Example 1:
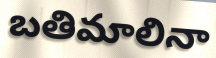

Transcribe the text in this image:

బతిమాలినా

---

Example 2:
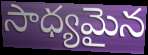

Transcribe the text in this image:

సాధ్యమైన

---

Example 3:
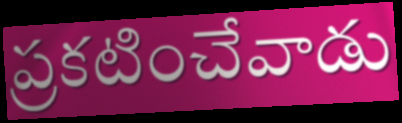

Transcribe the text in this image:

ప్రకటించేవాడు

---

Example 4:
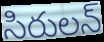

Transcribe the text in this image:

సిరులన్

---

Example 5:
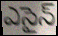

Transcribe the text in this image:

ఎసైన్